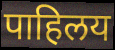
पाहिलय